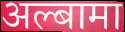
अल्बामा